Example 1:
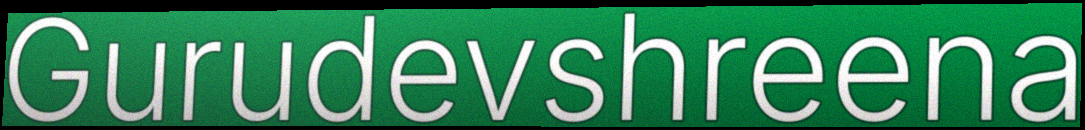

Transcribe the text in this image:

Gurudevshreena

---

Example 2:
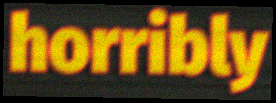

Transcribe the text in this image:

horribly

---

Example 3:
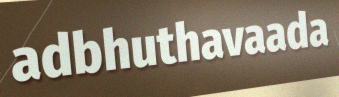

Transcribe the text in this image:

adbhuthavaada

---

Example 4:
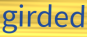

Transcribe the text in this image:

girded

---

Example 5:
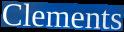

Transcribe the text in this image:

Clements